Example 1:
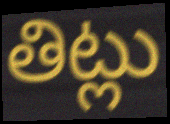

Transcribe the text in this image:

తిట్లు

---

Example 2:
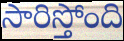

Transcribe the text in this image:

సారిస్తోంది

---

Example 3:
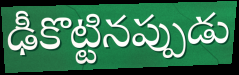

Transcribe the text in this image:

ఢీకొట్టినప్పుడు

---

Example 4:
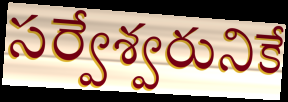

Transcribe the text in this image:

సర్వేశ్వరునికే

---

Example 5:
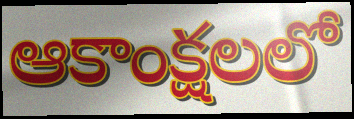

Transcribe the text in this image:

ఆకాంక్షలలో